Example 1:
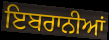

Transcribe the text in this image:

ਇਬਰਾਨੀਆਂ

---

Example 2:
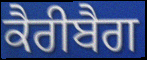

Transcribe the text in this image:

ਕੈਰੀਬੈਗ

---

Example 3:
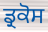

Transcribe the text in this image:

ਡ੍ਰਕੋਸ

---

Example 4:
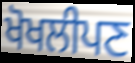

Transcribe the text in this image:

ਖੋਖਲੀਪਣ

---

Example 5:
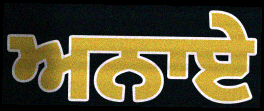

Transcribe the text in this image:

ਅਨਾਏ